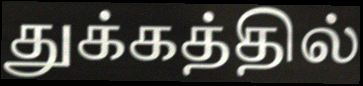
துக்கத்தில்